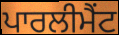
ਪਾਰਲੀਮੈਂਟ